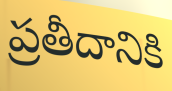
ప్రతీదానికి